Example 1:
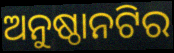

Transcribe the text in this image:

ଅନୁଷ୍ଠାନଟିର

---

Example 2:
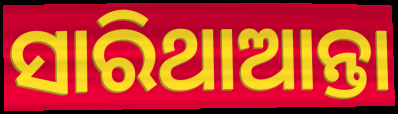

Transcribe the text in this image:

ସାରିଥାଆନ୍ତା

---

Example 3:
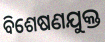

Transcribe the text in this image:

ବିଶେଷଣଯୁକ୍ତ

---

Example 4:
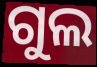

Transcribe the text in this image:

ଗୁଲ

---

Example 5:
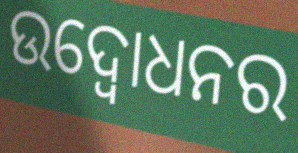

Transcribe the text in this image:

ଉଦ୍ବୋଧନର